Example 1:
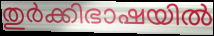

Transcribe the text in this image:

തുർക്കിഭാഷയിൽ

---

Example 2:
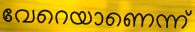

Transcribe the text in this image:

വേറെയാണെന്ന്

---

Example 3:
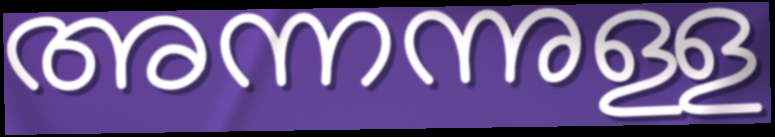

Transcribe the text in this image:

അന്നന്നുള്ള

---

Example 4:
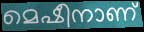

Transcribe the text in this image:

മെഷീനാണ്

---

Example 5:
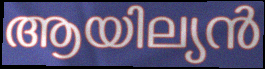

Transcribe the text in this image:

ആയില്യൻ